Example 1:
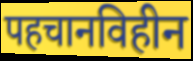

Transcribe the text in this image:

पहचानविहीन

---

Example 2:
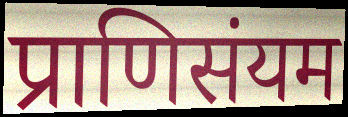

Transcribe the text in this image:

प्राणिसंयम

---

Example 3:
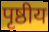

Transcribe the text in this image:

पृष्ठीय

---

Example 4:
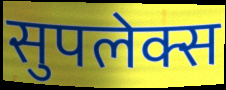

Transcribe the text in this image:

सुपलेक्स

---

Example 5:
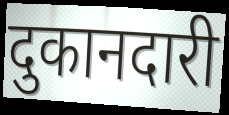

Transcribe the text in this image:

दुकानदारी